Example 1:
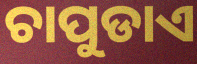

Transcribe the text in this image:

ଚାପୁଡାଏ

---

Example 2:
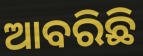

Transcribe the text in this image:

ଆବରିଛି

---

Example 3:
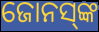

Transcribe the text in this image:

ଜୋନସ୍‌ଙ୍କ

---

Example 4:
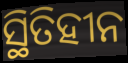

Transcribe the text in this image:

ସ୍ଥିତିହୀନ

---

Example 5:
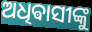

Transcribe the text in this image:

ଅଧିଵାସୀଙ୍କୁ